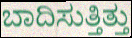
ಬಾದಿಸುತ್ತಿತ್ತು